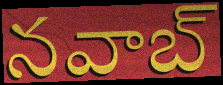
నవాబ్